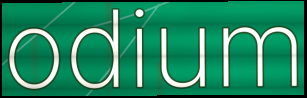
odium